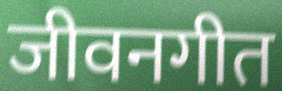
जीवनगीत